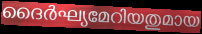
ദൈർഘ്യമേറിയതുമായ